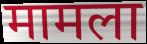
मामला